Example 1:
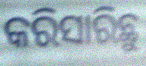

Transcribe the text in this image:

କରିସାରିଛୁ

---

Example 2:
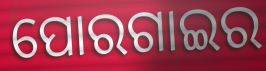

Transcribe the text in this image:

ପୋରଗାଇର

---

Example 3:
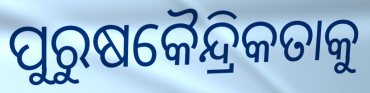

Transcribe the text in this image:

ପୁରୁଷକୈନ୍ଦ୍ରିକତାକୁ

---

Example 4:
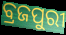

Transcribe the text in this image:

ବ୍ରଜପୁରୀ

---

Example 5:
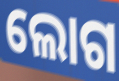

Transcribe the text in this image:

ଲୋଗ